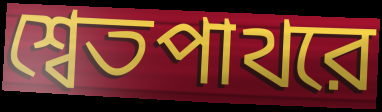
শ্বেতপাথরে